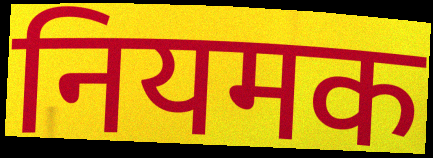
नियमक